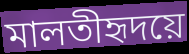
মালতীহৃদয়ে